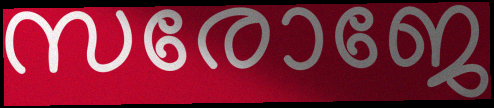
സരോജേ